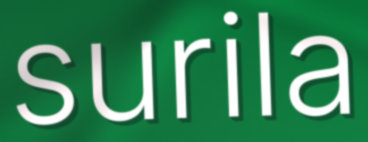
surila